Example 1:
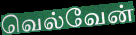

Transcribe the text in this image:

வெல்வேன்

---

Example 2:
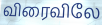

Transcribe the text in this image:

விரைவிலே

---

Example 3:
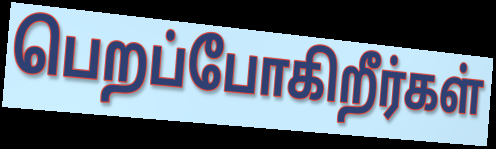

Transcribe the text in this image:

பெறப்போகிறீர்கள்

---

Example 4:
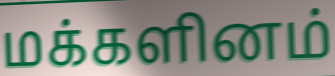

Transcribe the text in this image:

மக்களினம்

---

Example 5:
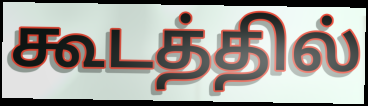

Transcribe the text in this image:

கூடத்தில்